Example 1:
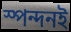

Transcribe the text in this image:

স্পন্দনই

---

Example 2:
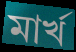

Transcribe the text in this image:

মার্খ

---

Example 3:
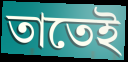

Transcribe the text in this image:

তাতেই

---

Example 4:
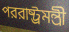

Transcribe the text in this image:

পররাষ্ট্রমন্ত্রী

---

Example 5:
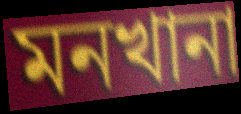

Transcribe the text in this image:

মনখানা